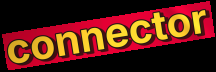
connector